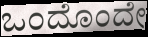
ಒಂದೊಂದೇ